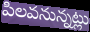
పిలవనున్నట్లు